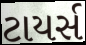
ટાયર્સ